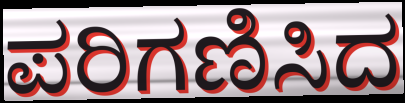
ಪರಿಗಣಿಸಿದ